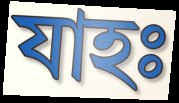
যাহঃ